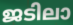
ജടിലാ